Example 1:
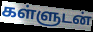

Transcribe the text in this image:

கள்ளுடன்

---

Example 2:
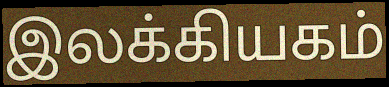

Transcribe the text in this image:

இலக்கியகம்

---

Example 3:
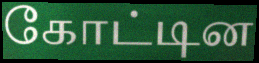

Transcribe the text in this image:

கோட்டின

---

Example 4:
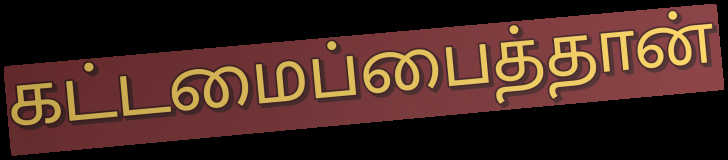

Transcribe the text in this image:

கட்டமைப்பைத்தான்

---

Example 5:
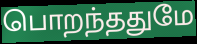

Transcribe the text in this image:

பொறந்ததுமே